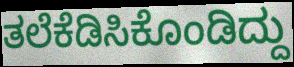
ತಲೆಕೆಡಿಸಿಕೊಂಡಿದ್ದು